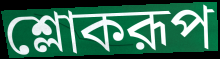
শ্লোকরূপ